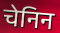
चेनिन